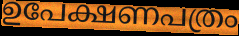
ഉപേക്ഷണപത്രം